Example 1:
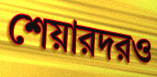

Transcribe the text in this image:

শেয়ারদরও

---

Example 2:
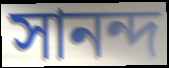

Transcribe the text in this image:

সানন্দ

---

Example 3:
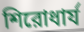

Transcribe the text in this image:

শিরোধার্য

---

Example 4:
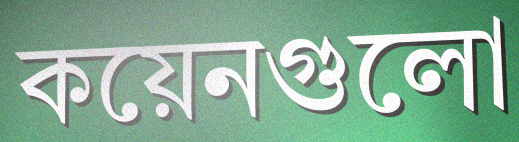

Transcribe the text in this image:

কয়েনগুলো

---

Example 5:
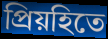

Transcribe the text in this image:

প্রিয়হিতে